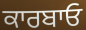
ਕਾਰਬਾਓ